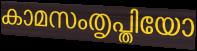
കാമസംതൃപ്തിയോ